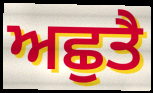
ਅਛੁਤੈ